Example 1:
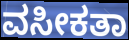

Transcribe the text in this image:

ವಸೀಕತಾ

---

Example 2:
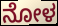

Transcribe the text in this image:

ನೋಳ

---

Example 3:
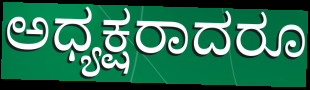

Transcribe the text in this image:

ಅಧ್ಯಕ್ಷರಾದರೂ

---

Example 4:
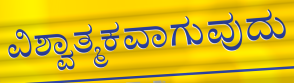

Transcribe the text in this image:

ವಿಶ್ವಾತ್ಮಕವಾಗುವುದು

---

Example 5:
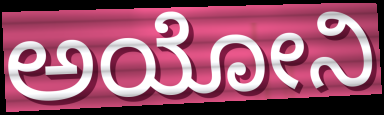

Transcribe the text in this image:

ಅಯೋನಿ